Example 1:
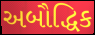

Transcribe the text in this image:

અબૌદ્ધિક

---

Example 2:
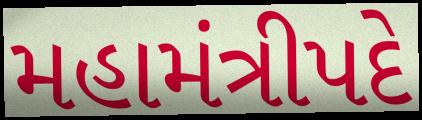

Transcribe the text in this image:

મહામંત્રીપદે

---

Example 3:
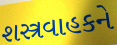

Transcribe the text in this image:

શસ્ત્રવાહકને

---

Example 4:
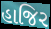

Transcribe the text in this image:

હાજિર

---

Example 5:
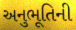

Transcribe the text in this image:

અનુભૂતિની